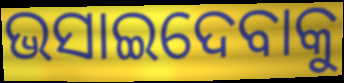
ଭସାଇଦେବାକୁ